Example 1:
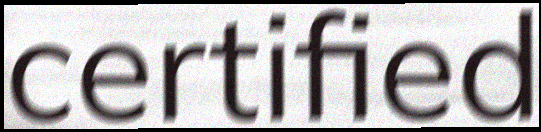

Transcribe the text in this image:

certified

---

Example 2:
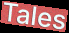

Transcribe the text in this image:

Tales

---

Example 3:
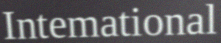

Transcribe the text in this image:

Intemational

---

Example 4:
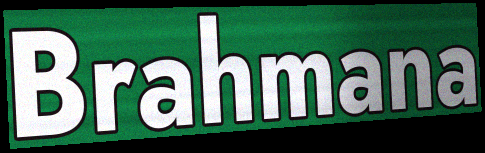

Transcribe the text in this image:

Brahmana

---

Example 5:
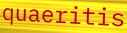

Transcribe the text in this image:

quaeritis